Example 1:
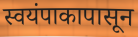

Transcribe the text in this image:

स्वयंपाकापासून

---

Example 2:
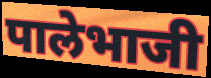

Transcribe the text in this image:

पालेभाजी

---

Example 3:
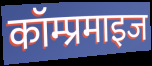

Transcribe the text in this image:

कॉम्प्रमाइज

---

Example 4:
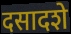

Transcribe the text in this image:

दसादशे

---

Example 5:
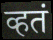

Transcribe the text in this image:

व्हतं